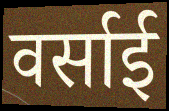
वर्साई